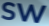
sw